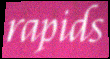
rapids